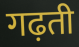
गढ़ती